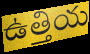
ఉత్తియ